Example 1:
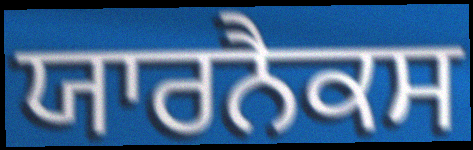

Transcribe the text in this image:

ਯਾਰਨੈਕਸ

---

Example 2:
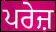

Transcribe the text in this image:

ਪਰੇਜ਼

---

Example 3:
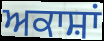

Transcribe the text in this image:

ਅਕਾਸ਼ਾਂ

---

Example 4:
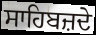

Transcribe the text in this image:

ਸਾਹਿਬਜ਼ਦੇ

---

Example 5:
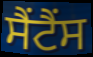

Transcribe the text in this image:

ਸੈਂਟੈਂਸ